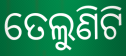
ତେଲୁଣିଟି